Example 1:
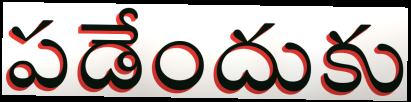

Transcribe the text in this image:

పడేందుకు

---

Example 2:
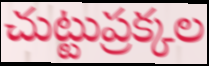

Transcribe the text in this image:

చుట్టుప్రక్కల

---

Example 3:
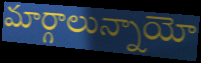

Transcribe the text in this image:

మార్గాలున్నాయో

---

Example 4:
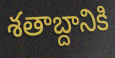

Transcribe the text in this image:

శతాబ్దానికి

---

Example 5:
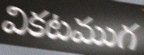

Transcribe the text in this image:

వికటముగ